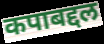
कपाबद्दल